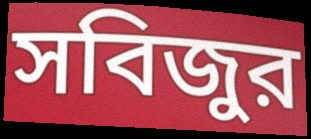
সবিজুর